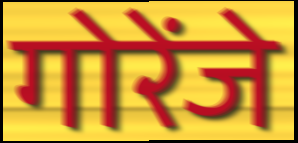
गोरेंजे